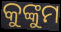
କୁଙ୍କୁମ